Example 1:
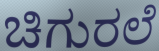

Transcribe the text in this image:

ಚಿಗುರಲೆ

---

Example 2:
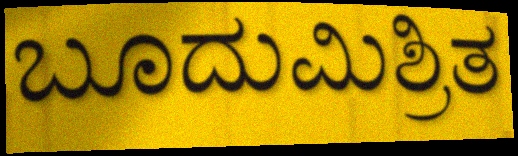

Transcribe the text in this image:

ಬೂದುಮಿಶ್ರಿತ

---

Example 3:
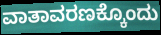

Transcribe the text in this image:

ವಾತಾವರಣಕ್ಕೊಂದು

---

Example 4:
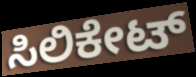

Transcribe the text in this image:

ಸಿಲಿಕೇಟ್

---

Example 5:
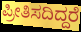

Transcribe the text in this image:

ಪ್ರೀತಿಸದಿದ್ದರೆ